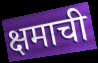
क्षमाची